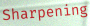
Sharpening